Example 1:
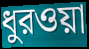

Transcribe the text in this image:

ধুরওয়া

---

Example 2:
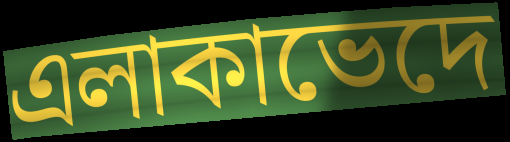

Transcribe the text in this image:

এলাকাভেদে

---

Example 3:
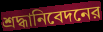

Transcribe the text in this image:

শ্রদ্ধানিবেদনের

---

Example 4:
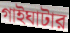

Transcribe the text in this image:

গাইঘাটার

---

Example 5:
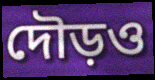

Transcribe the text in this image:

দৌড়ও